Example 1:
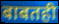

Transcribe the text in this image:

बाबतही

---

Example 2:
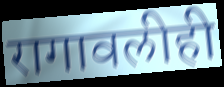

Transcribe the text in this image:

रागावलीही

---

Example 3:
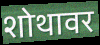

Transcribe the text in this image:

शोथावर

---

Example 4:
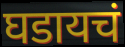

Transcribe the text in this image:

घडायचं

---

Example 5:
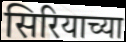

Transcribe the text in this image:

सिरियाच्या